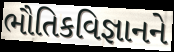
ભૌતિકવિજ્ઞાનને